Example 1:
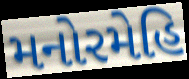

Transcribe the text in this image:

મનોરમેહિ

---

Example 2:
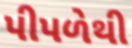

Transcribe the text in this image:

પીપળેથી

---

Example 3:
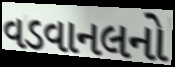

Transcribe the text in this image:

વડવાનલનો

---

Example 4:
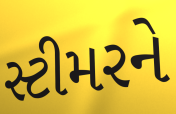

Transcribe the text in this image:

સ્ટીમરને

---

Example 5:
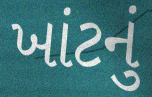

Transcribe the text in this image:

ખાંટનું